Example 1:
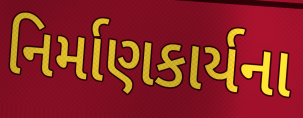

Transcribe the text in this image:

નિર્માણકાર્યના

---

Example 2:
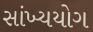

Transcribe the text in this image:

સાંખ્યયોગ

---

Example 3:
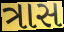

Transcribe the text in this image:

ત્રાસ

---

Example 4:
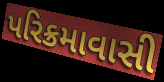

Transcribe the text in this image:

પરિક્રમાવાસી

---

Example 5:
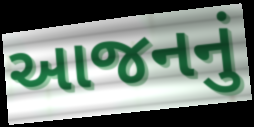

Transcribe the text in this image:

આજનનું